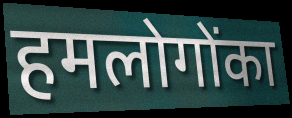
हमलोगोंका